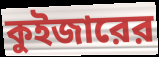
কুইজারের